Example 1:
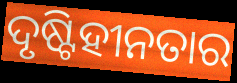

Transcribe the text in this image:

ଦୃଷ୍ଟିହୀନତାର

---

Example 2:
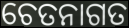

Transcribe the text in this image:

ଚେତନାଗତ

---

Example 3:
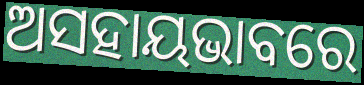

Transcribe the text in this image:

ଅସହାୟଭାବରେ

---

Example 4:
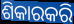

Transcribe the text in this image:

ଶିକାରକରି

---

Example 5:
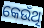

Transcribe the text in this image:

କେଉଁଥି